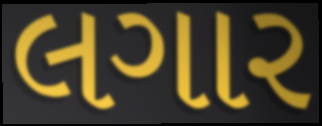
લગાર